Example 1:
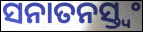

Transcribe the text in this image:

ସନାତନସ୍ତ୍ୱଂ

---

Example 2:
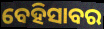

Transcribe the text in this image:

ବେହିସାବର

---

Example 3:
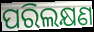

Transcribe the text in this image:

ପରିଲକ୍ଷଣ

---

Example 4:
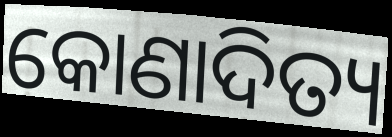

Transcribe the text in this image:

କୋଣାଦିତ୍ୟ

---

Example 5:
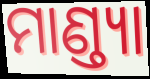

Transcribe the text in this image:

ମାଣ୍ଡ୍ୟା